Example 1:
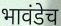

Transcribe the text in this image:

भावंडेच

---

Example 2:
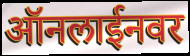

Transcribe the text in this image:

ऑनलाईनवर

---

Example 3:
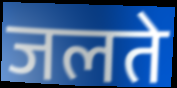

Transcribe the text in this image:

जलते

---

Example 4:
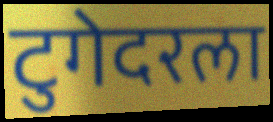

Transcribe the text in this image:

टुगेदरला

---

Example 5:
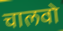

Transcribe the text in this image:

चालवो